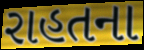
રાહતના